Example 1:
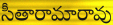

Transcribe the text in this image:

సీతారామారావు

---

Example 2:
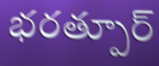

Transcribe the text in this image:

భరత్పూర్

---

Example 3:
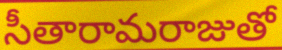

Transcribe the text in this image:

సీతారామరాజుతో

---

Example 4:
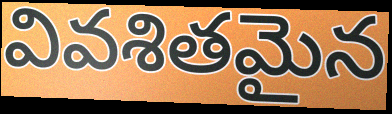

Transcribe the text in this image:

వివశితమైన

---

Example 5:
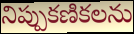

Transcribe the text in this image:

నిప్పుకణికలను